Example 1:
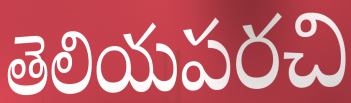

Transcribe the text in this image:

తెలియపరచి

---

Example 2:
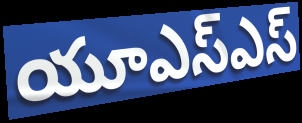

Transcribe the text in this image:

యూఎస్ఎస్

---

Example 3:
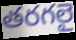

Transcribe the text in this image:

తరగలై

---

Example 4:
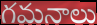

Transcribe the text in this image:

గమనాలు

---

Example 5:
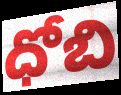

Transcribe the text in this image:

ధోబి